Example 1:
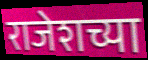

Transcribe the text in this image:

राजेशच्या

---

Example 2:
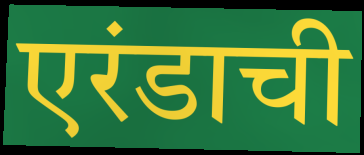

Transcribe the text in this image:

एरंडाची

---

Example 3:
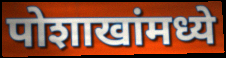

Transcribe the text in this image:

पोशाखांमध्ये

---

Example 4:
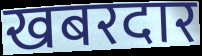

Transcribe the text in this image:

खबरदार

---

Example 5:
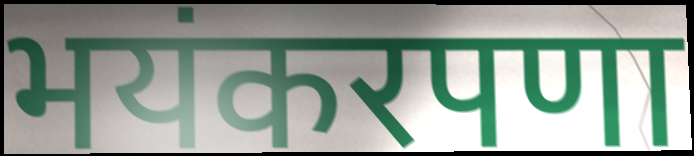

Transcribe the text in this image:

भयंकरपणा